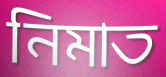
নিমাত